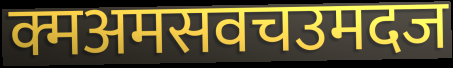
क्मअमसवचउमदज